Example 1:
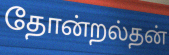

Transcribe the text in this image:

தோன்றல்தன்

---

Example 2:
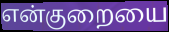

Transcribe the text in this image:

என்குறையை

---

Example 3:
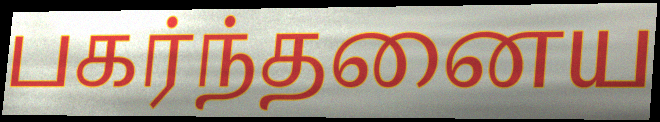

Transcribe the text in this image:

பகர்ந்தனைய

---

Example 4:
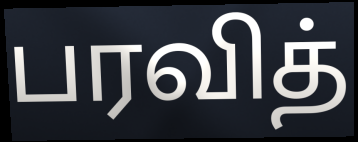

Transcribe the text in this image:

பரவித்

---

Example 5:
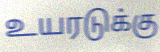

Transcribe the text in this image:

உயரடுக்கு